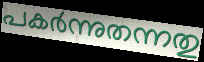
പകർന്നുതന്നതു